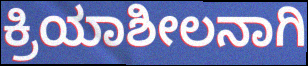
ಕ್ರಿಯಾಶೀಲನಾಗಿ